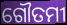
ଗୌତମୀ